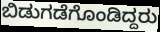
ಬಿಡುಗಡೆಗೊಂಡಿದ್ದರು